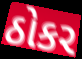
ઠોકર